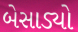
બેસાડ્યો